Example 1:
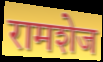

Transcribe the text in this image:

रामशेज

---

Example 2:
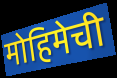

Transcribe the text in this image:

मोहिमेची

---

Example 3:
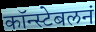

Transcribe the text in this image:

कॉन्स्टेबलनं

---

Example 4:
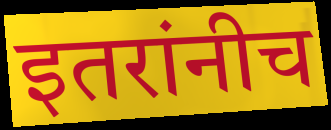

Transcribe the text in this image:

इतरांनीच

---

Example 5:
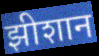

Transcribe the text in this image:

झीशान